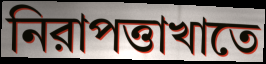
নিরাপত্তাখাতে